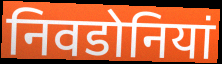
निवडोनियां